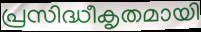
പ്രസിദ്ധീകൃതമായി